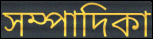
সম্পাদিকা